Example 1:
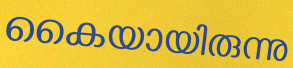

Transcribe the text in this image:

കൈയായിരുന്നു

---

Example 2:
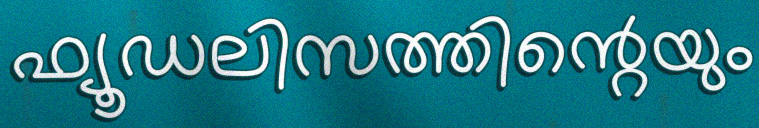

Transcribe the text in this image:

ഫ്യൂഡലിസത്തിന്റെയും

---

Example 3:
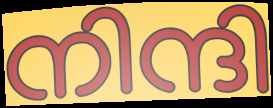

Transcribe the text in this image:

നിന്ദി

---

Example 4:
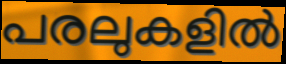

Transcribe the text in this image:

പരലുകളിൽ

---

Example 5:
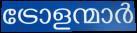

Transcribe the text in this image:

ട്രോളന്മാർ